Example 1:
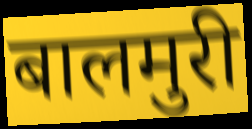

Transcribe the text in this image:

बालमुरी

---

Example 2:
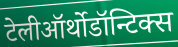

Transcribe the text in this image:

टेलीऑर्थोडॉन्टिक्स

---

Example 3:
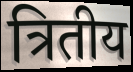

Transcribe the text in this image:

त्रितीय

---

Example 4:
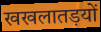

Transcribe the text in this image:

खखलातड़यों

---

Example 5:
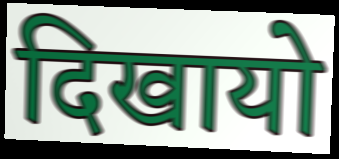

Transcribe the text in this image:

दिखायो